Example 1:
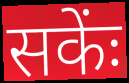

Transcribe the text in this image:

सकेंः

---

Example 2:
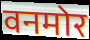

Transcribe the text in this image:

वनमोर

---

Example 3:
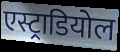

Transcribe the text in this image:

एस्ट्राडियोल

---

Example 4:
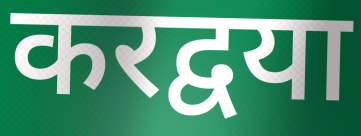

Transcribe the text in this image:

करद्वया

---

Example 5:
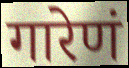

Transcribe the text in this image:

गारेणं